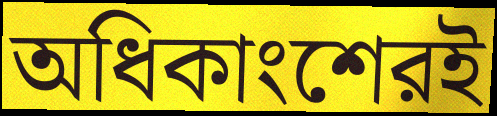
অধিকাংশেরই